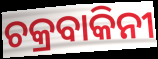
ଚକ୍ରବାକିନୀ